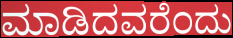
ಮಾಡಿದವರೆಂದು